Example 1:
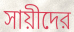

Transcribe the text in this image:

সায়ীদের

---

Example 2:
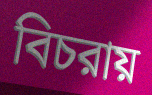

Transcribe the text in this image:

বিচরায়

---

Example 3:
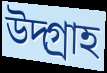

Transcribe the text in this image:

উদ্গ্রাহ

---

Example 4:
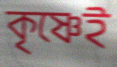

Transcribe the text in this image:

কৃষ্ণেই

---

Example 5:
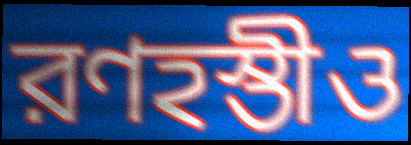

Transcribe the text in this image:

রণহস্তীও